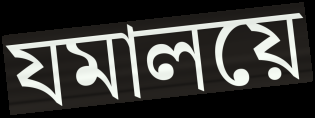
যমালয়ে